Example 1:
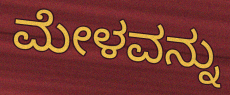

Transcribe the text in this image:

ಮೇಳವನ್ನು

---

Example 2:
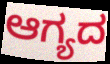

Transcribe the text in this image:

ಆಗ್ಯದ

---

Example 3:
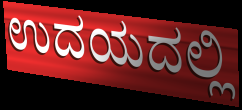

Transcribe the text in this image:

ಉದಯದಲ್ಲಿ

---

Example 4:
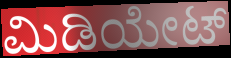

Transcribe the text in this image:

ಮಿಡಿಯೇಟ್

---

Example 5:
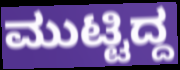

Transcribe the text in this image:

ಮುಟ್ಟಿದ್ದ